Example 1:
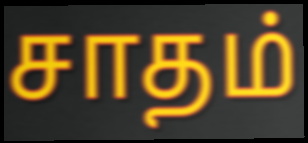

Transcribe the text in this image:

சாதம்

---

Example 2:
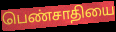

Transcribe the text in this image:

பெண்சாதியை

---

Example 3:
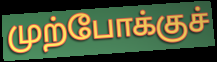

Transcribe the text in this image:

முற்போக்குச்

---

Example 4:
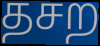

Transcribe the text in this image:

தசற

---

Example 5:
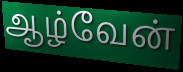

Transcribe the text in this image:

ஆழ்வேன்